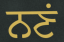
ਨਣਂ